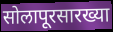
सोलापूरसारख्या